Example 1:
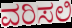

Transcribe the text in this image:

ವರಿಸಲಿ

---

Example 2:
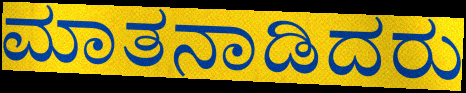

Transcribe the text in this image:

ಮಾತನಾಡಿದರು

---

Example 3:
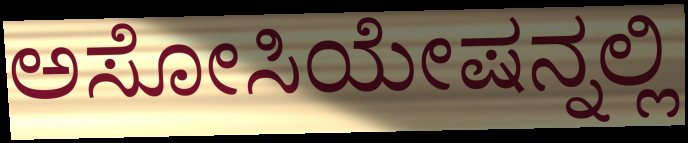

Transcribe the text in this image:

ಅಸೋಸಿಯೇಷನ್ನಲ್ಲಿ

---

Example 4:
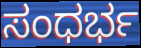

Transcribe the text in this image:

ಸಂಧರ್ಭ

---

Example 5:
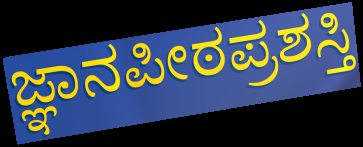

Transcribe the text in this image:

ಜ್ಞಾನಪೀಠಪ್ರಶಸ್ತಿ